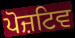
ਪੋਜ਼ਟਿਵ